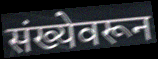
संख्येवरून